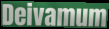
Deivamum